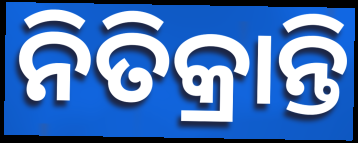
ନିତିକ୍ରାନ୍ତି